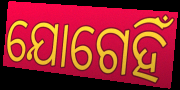
ଯୋଗେହିଁ